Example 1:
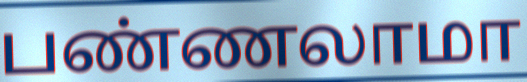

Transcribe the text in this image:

பண்ணலாமா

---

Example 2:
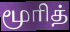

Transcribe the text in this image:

மூரித்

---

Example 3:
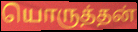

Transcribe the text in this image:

யொருத்தன்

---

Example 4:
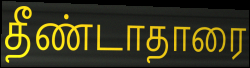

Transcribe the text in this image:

தீண்டாதாரை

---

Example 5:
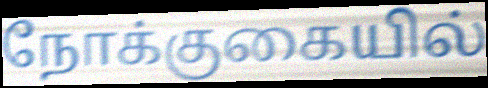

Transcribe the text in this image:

நோக்குகையில்